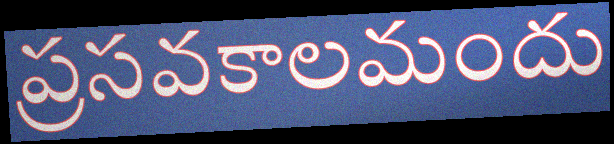
ప్రసవకాలమందు